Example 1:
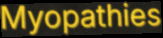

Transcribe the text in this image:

Myopathies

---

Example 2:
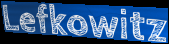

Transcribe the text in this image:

Lefkowitz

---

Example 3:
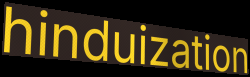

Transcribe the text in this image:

hinduization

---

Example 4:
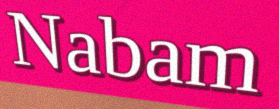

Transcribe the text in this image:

Nabam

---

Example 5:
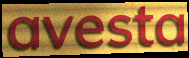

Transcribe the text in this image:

avesta